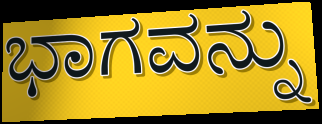
ಭಾಗವನ್ನು